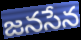
జనసేన